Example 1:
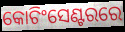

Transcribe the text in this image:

କୋଚିଂସେଣ୍ଟରରେ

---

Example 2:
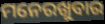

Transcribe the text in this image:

ମନେରଖୁବାର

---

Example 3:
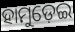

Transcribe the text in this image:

ହାମୁଡ଼େଇ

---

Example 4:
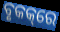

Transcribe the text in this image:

ବୃକକ୍‌ରେ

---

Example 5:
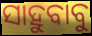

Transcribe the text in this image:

ସାହୁବାବୁ